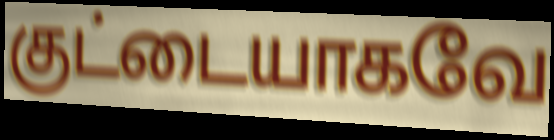
குட்டையாகவே